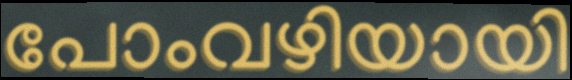
പോംവഴിയായി